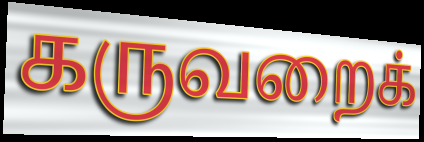
கருவறைக்